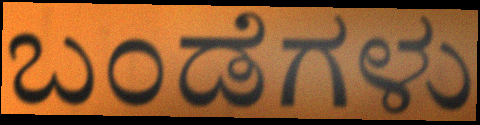
ಬಂಡೆಗಳು